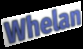
Whelan